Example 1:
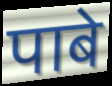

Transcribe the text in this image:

पाबे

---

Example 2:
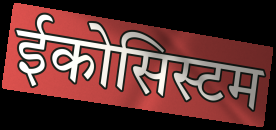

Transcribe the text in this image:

ईकोसिस्‍टम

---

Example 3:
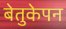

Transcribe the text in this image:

बेतुकेपन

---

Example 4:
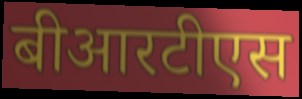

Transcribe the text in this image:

बीआरटीएस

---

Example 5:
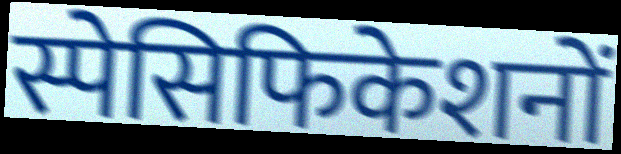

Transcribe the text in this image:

स्पेसिफिकेशनों